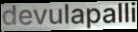
devulapalli